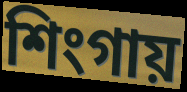
শিংগায়